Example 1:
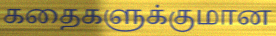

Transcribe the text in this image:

கதைகளுக்குமான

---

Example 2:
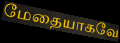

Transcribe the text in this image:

மேதையாகவே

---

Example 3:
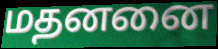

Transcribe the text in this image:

மதனனை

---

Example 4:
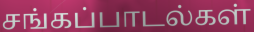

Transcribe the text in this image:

சங்கப்பாடல்கள்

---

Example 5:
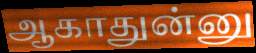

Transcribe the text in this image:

ஆகாதுன்னு